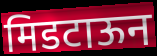
मिडटाऊन